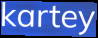
kartey